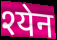
श्येन